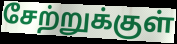
சேற்றுக்குள்